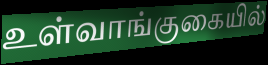
உள்வாங்குகையில்